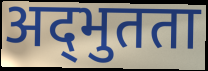
अद्‌भुतता